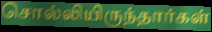
சொல்லியிருந்தார்கள்